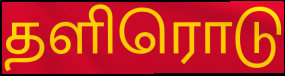
தளிரொடு